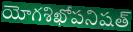
యోగశిఖోపనిషత్